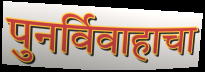
पुनर्विवाहाचा